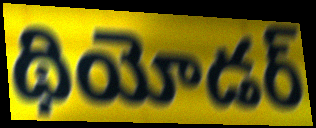
థియోడర్